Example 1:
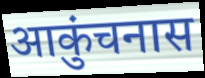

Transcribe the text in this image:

आकुंचनास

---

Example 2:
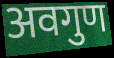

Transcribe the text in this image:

अवगुण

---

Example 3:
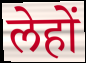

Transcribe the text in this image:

लेहों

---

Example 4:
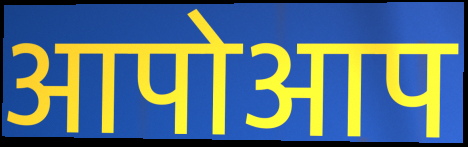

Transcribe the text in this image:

आपोआप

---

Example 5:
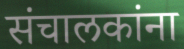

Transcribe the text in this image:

संचालकांना